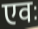
एवः